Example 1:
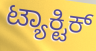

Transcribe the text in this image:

ಟ್ಯಾಕ್ಟಿಕ್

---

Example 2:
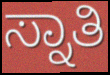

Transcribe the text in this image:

ಸ್ನಾತಿ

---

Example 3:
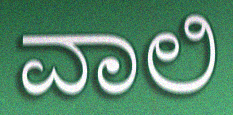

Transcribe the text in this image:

ವಾಲಿ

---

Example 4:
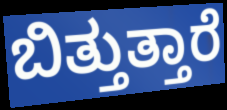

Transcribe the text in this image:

ಬಿತ್ತುತ್ತಾರೆ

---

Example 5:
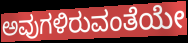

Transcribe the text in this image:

ಅವುಗಳಿರುವಂತೆಯೇ